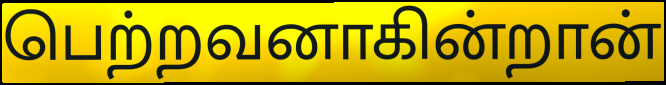
பெற்றவனாகின்றான்